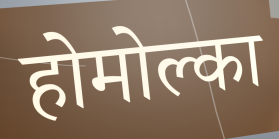
होमोल्का